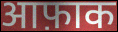
आफ़ाक